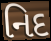
નિદ